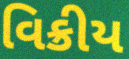
વિક્રીય